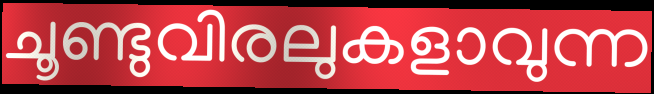
ചൂണ്ടുവിരലുകളാവുന്ന